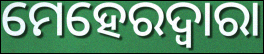
ମେହେରଦ୍ୱାରା